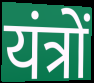
यंत्रों